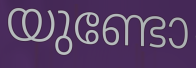
യുണ്ടോ